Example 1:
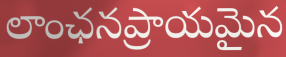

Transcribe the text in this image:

లాంఛనప్రాయమైన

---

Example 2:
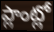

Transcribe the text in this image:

ప్లాంట్లో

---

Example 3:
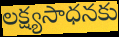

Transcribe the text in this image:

లక్ష్యసాధనకు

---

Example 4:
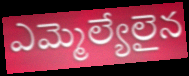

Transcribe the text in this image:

ఎమ్మెల్యేలైన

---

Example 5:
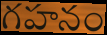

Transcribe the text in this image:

గహనం